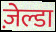
ज़ेल्डा